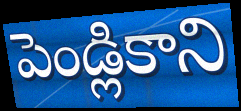
పెండ్లికాని